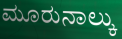
ಮೂರುನಾಲ್ಕು